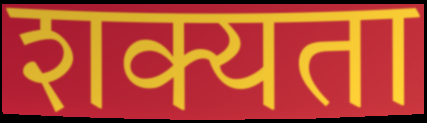
शक्यता